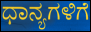
ಧಾನ್ಯಗಳಿಗೆ